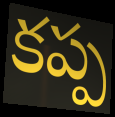
కప్ప